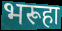
भरूहा